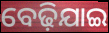
ବେଢ଼ିଯାଇ